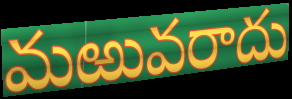
మఱువరాదు